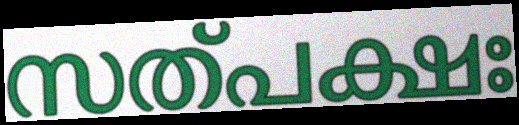
സത്പക്ഷഃ